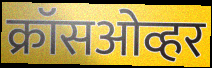
क्रॉसओव्हर